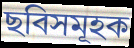
ছবিসমূহক